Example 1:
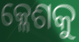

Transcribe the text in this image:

କ୍ଳେଶକୁ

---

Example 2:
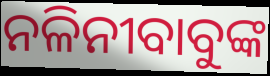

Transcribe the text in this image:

ନଳିନୀବାବୁଙ୍କ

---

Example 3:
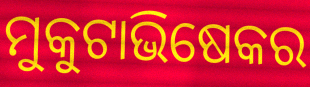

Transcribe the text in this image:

ମୁକୁଟାଭିଷେକର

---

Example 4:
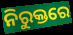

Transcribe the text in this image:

ନିରୁକ୍ତରେ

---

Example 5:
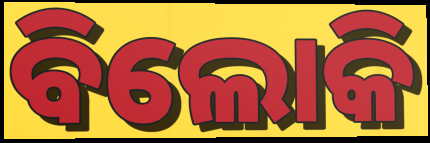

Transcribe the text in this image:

ବିଲୋକି